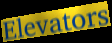
Elevators